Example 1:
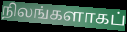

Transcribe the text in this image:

நிலங்களாகப்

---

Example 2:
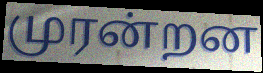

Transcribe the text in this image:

முரன்றன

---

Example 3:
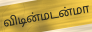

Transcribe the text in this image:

விடின்மடன்மா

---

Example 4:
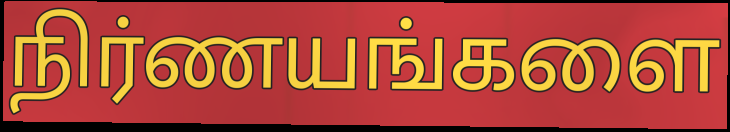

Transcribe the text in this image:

நிர்ணயங்களை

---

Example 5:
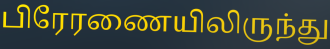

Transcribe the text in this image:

பிரேரணையிலிருந்து